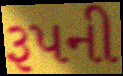
રૂપની